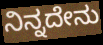
ನಿನ್ನದೇನು